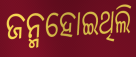
ଜନ୍ମହୋଇଥିଲି